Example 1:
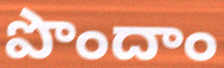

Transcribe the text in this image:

పొందాం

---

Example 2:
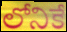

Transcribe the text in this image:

లోనికే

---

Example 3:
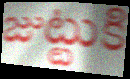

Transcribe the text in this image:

జుట్టుకి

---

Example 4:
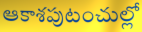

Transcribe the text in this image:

ఆకాశపుటంచుల్లో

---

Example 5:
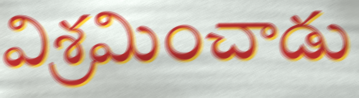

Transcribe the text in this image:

విశ్రమించాడు